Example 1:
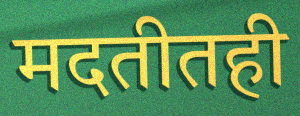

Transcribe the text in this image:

मदतीतही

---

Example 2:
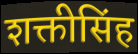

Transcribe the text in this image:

शक्तीसिंह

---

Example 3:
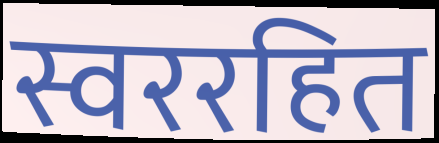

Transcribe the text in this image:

स्वररहित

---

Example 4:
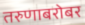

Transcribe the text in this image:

तरुणाबरोबर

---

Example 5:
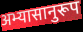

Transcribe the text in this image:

अभ्यासानुरूप